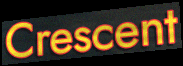
Crescent